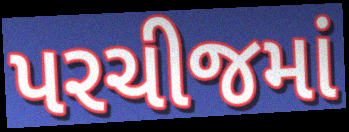
પરચીજમાં